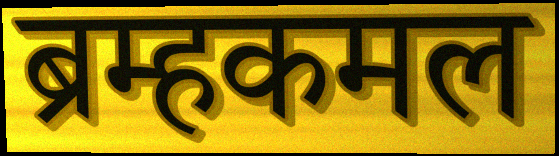
ब्रम्हकमल